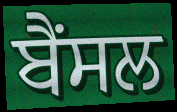
ਬੈਂਸਲ